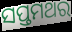
ସପ୍ତମଥର